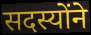
सदस्योंने